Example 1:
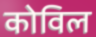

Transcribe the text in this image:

कोविल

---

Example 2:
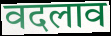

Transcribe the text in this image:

वदलाव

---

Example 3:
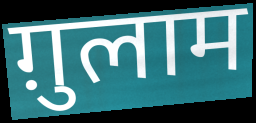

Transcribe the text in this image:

ग़ुलाम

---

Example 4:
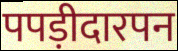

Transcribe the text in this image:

पपड़ीदारपन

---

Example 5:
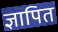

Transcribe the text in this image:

ज्ञापित